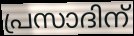
പ്രസാദിന്